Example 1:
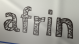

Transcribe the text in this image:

afrin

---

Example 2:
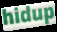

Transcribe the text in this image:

hidup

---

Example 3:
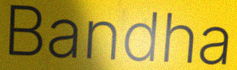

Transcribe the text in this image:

Bandha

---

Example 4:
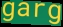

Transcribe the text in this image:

garg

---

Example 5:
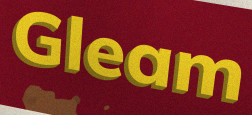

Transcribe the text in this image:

Gleam